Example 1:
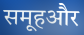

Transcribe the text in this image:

समूहऔर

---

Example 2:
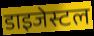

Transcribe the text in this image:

डाइजेस्टल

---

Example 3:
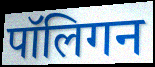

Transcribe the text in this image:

पॉलिगन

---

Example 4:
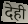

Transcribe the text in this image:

देही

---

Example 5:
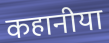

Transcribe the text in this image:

कहानीया